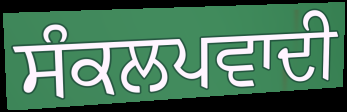
ਸੰਕਲਪਵਾਦੀ